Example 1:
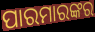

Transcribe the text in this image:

ପାରମାରଙ୍କର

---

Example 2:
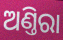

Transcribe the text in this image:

ଅଣ୍ତିରା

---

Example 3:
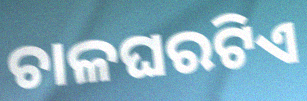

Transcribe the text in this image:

ଚାଳଘରଟିଏ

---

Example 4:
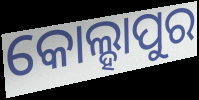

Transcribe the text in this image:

କୋଲ୍ହାପୁର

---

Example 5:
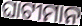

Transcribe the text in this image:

ଘାଟୀମାନ